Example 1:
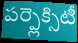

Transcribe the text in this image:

పర్ప్లెక్సిటీ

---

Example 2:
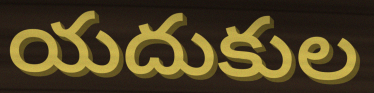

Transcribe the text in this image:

యదుకుల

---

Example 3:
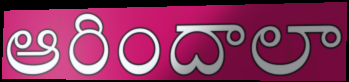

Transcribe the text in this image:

ఆరిందాలా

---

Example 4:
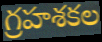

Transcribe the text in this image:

గ్రహశకల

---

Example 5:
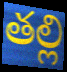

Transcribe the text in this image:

తల్లి